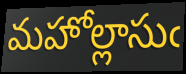
మహోల్లాసుఁ